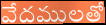
వేదములతో